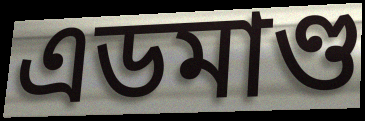
এডমাণ্ড